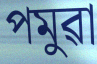
পমুৱা